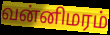
வன்னிமரம்